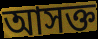
আসক্ত